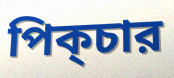
পিক্চার